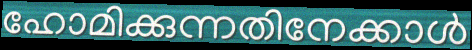
ഹോമിക്കുന്നതിനേക്കാൾ